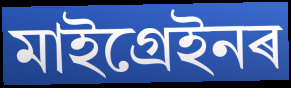
মাইগ্ৰেইনৰ